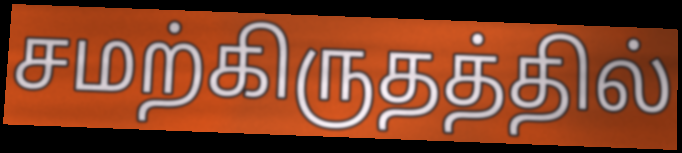
சமற்கிருதத்தில்